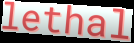
lethal